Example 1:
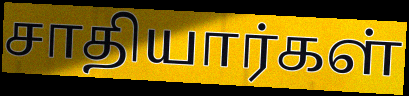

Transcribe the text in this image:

சாதியார்கள்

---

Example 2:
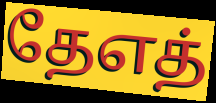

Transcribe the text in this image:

தேஎத்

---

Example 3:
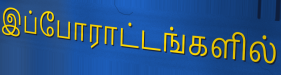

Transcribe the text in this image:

இப்போராட்டங்களில்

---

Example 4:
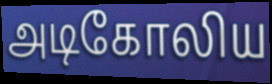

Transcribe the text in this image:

அடிகோலிய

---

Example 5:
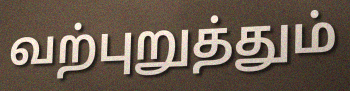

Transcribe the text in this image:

வற்புறுத்தும்